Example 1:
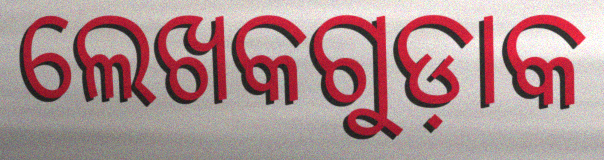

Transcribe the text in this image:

ଲେଖକଗୁଡ଼ାକ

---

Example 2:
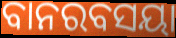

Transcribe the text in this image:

ବାନରବସୟା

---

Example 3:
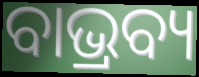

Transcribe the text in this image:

ବାଭ୍ରବ୍ୟ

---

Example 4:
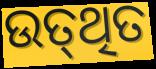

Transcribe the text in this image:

ଉତ୍‌ଥିତ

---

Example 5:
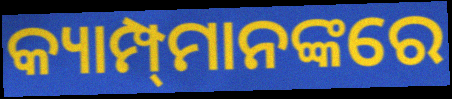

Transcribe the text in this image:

କ୍ୟାମ୍ପ୍‍ମାନଙ୍କରେ